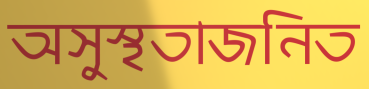
অসুস্থতাজনিত